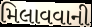
મિલાવવાની